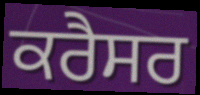
ਕਰੈਸਰ